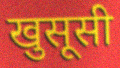
खुसूसी